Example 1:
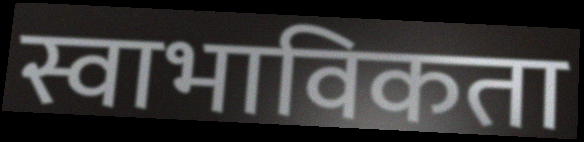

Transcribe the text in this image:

स्वाभाविकता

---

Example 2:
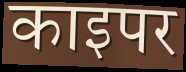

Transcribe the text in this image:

काइपर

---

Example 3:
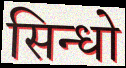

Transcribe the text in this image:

सिन्धो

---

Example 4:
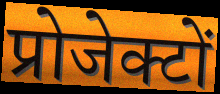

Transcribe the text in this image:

प्रोजेक्टों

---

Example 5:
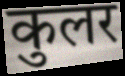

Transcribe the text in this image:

कुलर